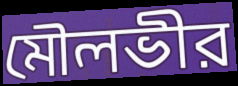
মৌলভীর